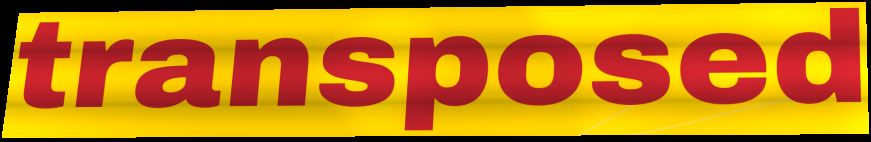
transposed